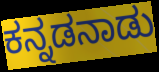
ಕನ್ನಡನಾಡು